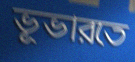
ভূভারতে